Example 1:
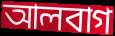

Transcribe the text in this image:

আলবাগ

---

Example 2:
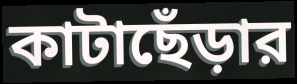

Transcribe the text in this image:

কাটাছেঁড়ার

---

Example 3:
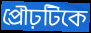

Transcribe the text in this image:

প্রৌঢ়টিকে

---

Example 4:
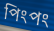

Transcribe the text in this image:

পিংপং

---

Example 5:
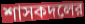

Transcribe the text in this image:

শাসকদলের